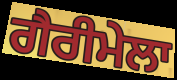
ਗੈਰੀਮੇਲਾ